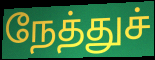
நேத்துச்